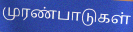
முரண்பாடுகள்